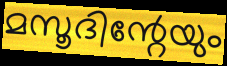
മസൂദിന്റേയും